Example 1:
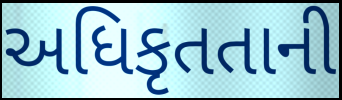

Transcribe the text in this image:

અધિકૃતતાની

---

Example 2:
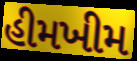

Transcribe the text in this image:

હીમખીમ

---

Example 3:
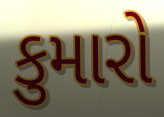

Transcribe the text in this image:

કુમારો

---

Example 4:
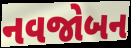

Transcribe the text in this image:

નવજોબન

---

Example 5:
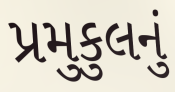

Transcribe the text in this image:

પ્રમુકુલનું